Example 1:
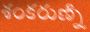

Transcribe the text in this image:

శంకరుణ్ని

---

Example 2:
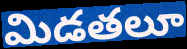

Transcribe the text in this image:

మిడతలూ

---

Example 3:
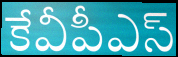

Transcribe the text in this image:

కేవీపీఎస్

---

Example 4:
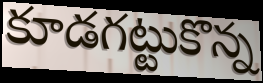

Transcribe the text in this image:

కూడగట్టుకొన్న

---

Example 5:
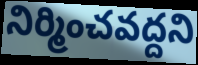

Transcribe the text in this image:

నిర్మించవద్దని